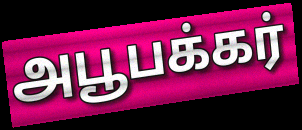
அபூபக்கர்